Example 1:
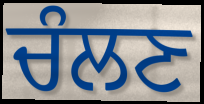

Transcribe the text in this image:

ਚੰਲਣ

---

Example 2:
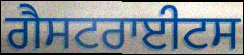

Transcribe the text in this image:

ਗੈਸਟਰਾਈਟਸ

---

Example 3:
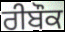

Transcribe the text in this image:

ਰੀਬੌਕ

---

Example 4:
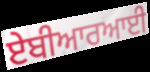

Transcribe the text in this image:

ਏਬੀਆਰਆਈ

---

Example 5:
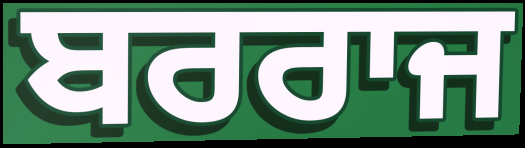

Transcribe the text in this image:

ਬਰਰਾਜ